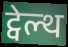
ट्वेल्थ